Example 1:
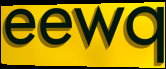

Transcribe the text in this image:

eewq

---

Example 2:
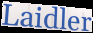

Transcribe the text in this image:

Laidler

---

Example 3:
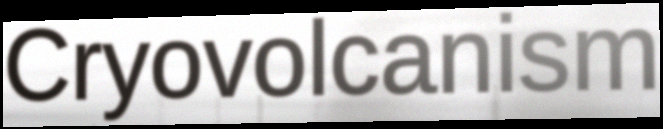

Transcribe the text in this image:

Cryovolcanism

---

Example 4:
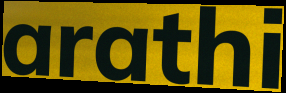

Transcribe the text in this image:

arathi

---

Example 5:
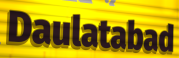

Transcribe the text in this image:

Daulatabad